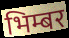
भिम्बर